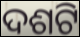
ଦଶଟି